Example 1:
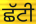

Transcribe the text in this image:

ਛੱਟੀ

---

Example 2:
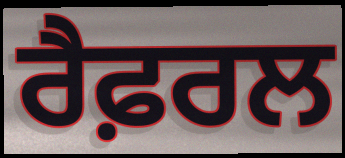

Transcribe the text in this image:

ਰੈਫ਼ਰਲ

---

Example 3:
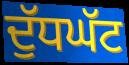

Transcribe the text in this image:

ਦੁੱਧਘੱਟ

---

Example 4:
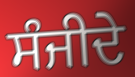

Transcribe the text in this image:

ਸੰਜੀਦੇ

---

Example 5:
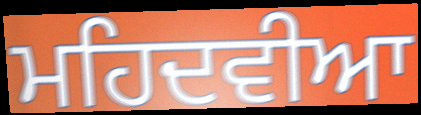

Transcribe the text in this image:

ਮਹਿਦਵੀਆ